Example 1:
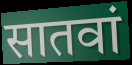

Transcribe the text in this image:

सातवां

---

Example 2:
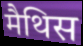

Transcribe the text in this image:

मैथिस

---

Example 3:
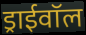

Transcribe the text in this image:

ड्राईवॉल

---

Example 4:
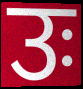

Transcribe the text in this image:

उः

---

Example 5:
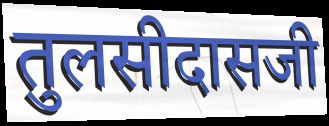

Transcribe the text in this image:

तुलसीदासजी